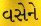
વસેને